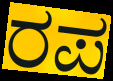
ರಪ